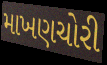
માખણચોરી